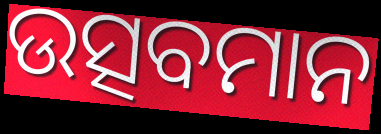
ଉତ୍ସବମାନ